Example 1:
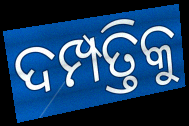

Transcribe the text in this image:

ଦମ୍ପତ୍ତିକୁ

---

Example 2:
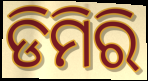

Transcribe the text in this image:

ଡିମିରି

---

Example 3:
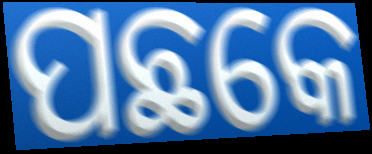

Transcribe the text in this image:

ପଛକେ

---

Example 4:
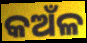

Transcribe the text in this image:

କଅଁଳ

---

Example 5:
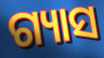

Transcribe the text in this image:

ଗ୍ୟାସ